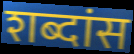
शब्दांस